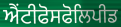
ਐਂਟੀਫੋਸਫੋਲਿਪੀਡ